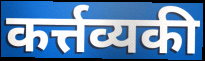
कर्त्तव्यकी